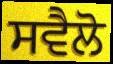
ਸਵੈਲੋ